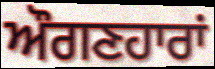
ਔਗਣਹਾਰਾਂ